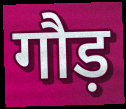
गौड़